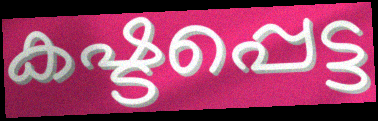
കഷ്ടപ്പെട്ട